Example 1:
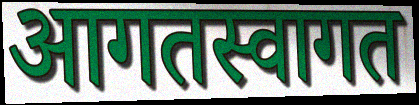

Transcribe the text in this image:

आगतस्वागत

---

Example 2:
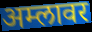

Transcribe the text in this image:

अम्लावर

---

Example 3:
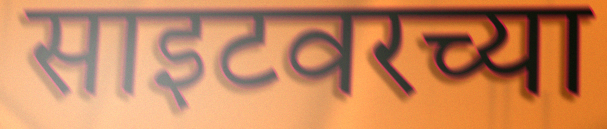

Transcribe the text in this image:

साइटवरच्या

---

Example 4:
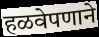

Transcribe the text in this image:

हळवेपणाने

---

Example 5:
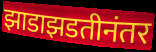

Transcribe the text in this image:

झाडाझडतीनंतर